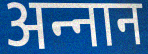
अन्नान